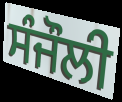
ਸੰਜੌਲੀ